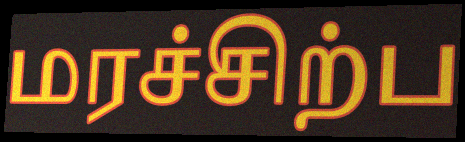
மரச்சிற்ப